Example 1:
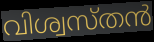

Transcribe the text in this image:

വിശ്വസ്തൻ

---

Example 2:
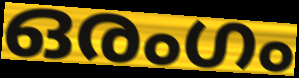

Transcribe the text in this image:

ഒരംഗം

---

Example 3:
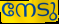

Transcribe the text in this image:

നേടു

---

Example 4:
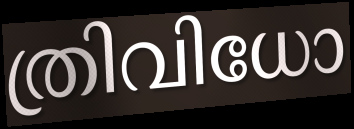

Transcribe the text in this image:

ത്രിവിധോ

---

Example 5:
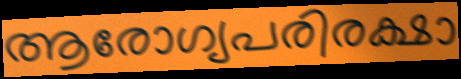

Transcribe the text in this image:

ആരോഗ്യപരിരക്ഷാ